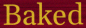
Baked